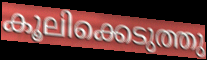
കൂലിക്കെടുത്തു